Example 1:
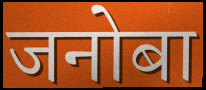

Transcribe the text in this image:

जनोबा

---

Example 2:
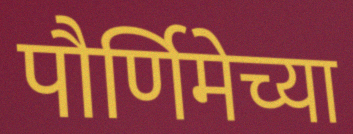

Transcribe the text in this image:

पौर्णिमेच्या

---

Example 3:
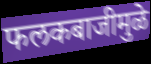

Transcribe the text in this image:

फलकबाजीमुळे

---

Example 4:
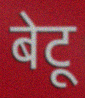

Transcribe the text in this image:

बेटू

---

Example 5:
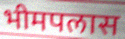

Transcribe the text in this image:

भीमपलास